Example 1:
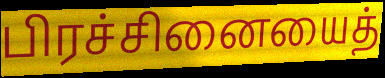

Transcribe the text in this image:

பிரச்சினையைத்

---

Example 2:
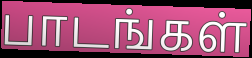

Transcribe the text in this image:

பாடங்கள்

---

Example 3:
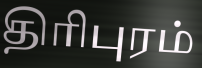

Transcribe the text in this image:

திரிபுரம்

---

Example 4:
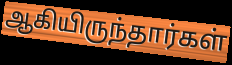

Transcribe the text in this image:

ஆகியிருந்தார்கள்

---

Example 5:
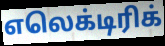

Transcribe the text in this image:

எலெக்டிரிக்